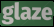
glaze